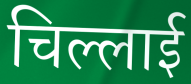
चिल्लाई